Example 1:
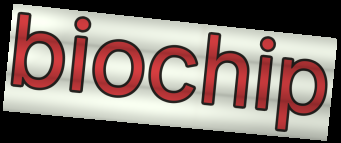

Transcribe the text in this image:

biochip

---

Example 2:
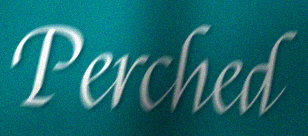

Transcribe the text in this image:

Perched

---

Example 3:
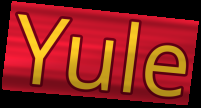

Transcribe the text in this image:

Yule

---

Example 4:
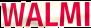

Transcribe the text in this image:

WALMI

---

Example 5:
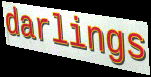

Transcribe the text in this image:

darlings